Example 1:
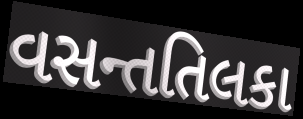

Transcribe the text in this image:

વસન્તતિલકા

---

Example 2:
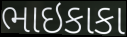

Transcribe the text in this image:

ભાઇકાકા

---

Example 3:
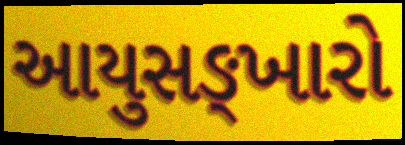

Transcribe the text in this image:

આયુસઙ્ખારો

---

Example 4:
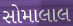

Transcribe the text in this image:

સોમાલાલ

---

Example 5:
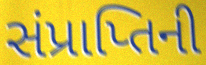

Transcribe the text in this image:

સંપ્રાપ્તિની